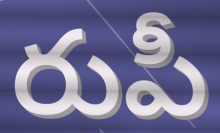
రుపీ